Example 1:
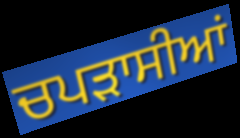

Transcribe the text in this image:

ਚਪੜਾਸੀਆਂ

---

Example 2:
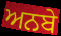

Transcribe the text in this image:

ਅਨਬੇ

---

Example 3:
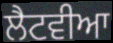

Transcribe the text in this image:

ਲੈਟਵੀਆ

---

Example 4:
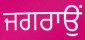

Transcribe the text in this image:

ਜਗਰਾਉਂ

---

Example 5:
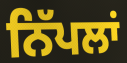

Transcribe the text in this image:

ਨਿੱਪਲਾਂ